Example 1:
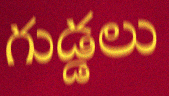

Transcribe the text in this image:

గుడ్డలు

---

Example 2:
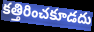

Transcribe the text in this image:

కత్తిరించకూడదు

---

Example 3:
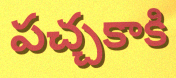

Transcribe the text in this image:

పచ్చకాకి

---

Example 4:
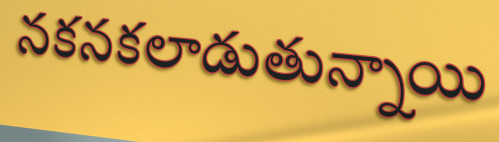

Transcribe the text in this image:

నకనకలాడుతున్నాయి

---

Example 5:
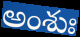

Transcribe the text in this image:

అంశుః